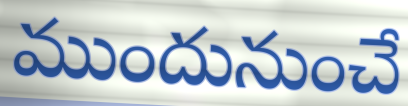
ముందునుంచే